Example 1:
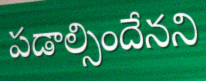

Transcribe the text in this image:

పడాల్సిందేనని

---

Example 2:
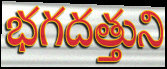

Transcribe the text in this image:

భగదత్తుని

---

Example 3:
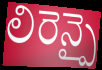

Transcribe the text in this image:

లిరెన్పై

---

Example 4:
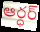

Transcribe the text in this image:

ఆర్ధర్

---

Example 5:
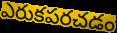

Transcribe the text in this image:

ఎరుకపరచడం